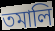
তমালি